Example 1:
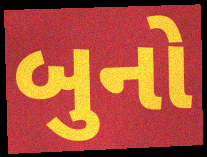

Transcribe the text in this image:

બુનો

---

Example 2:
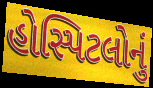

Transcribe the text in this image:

હોસ્પિટલોનું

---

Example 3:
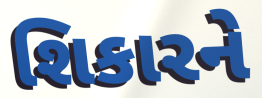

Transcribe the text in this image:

શિકારને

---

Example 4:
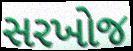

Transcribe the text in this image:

સરખોજ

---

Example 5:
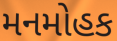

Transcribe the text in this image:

મનમોહક